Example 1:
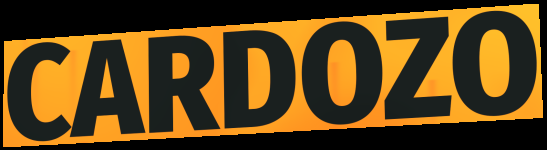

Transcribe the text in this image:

CARDOZO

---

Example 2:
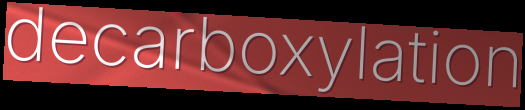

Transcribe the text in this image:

decarboxylation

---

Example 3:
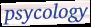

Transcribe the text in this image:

psycology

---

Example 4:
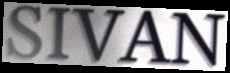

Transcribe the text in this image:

SIVAN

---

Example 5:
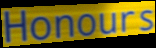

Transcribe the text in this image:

Honours